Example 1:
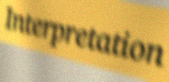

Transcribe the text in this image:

Interpretation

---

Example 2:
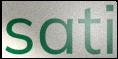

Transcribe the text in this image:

sati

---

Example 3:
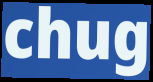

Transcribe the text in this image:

chug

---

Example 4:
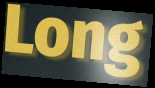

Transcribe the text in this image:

Long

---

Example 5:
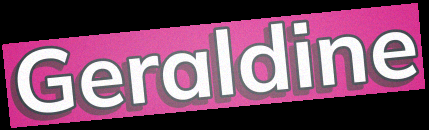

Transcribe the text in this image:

Geraldine